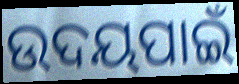
ଉଦୟପାଇଁ